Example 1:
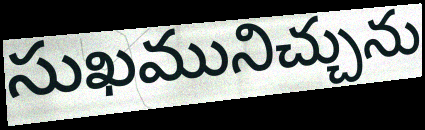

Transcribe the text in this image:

సుఖమునిచ్చును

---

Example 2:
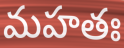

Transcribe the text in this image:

మహతః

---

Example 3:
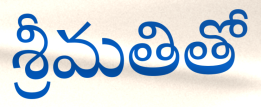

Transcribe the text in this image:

శ్రీమతితో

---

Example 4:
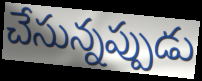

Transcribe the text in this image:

చేసున్నప్పుడు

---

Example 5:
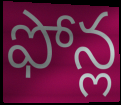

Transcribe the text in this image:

ఫోన్ల